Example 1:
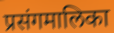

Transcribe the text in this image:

प्रसंगमालिका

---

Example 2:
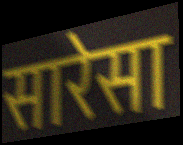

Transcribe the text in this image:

सारेसा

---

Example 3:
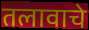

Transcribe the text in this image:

तलावाचे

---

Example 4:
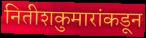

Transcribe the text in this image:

नितीशकुमारांकडून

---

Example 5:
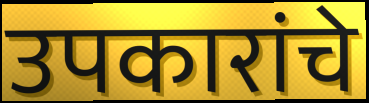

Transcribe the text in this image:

उपकारांचे